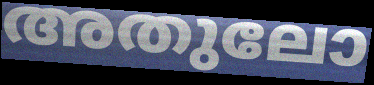
അതുലോ